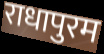
राधापुरम